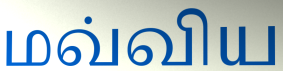
மவ்விய